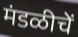
मंडळीचें